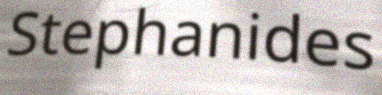
Stephanides